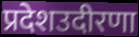
प्रदेशउदीरणा